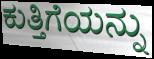
ಕುತ್ತಿಗೆಯನ್ನು